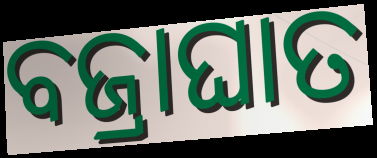
ବଜ୍ରାଘାତ